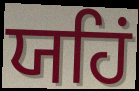
ਯਹਿਂ